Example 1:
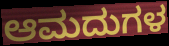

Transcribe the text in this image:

ಆಮದುಗಳ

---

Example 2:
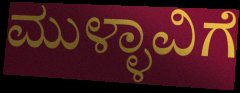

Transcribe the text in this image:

ಮುಳ್ಳಾವಿಗೆ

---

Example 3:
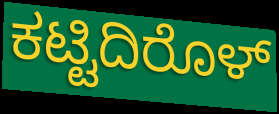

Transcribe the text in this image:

ಕಟ್ಟಿದಿರೊಳ್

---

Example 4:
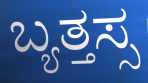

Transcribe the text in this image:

ಬ್ಯತ್ತಸ್ಸ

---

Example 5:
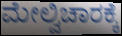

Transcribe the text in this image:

ಮೇಲ್ವಿಚಾರಕ್ಕೆ